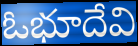
ఓభూదేవి